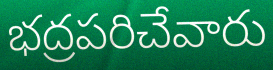
భద్రపరిచేవారు